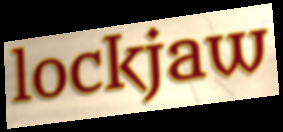
lockjaw